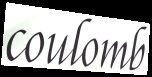
coulomb